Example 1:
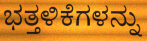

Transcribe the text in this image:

ಭತ್ತಳಿಕೆಗಳನ್ನು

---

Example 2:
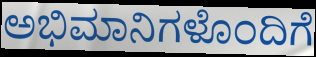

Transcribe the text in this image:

ಅಭಿಮಾನಿಗಳೊಂದಿಗೆ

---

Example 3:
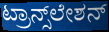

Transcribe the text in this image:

ಟ್ರಾನ್ಸ್‌ಲೇಶನ್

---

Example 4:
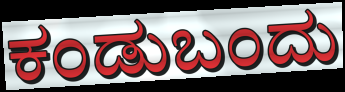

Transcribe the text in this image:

ಕಂಡುಬಂದು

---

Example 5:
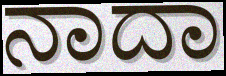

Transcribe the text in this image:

ನಾದಾ